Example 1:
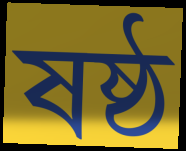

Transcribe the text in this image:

ষষ্ঠ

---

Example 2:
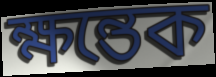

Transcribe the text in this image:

ক্ষন্তেক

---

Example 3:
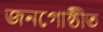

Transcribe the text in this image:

জনগোষ্ঠীত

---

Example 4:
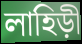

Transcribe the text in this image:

লাহিড়ী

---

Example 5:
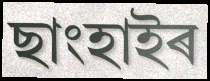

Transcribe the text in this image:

ছাংহাইৰ